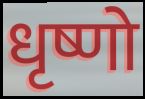
धृष्णो